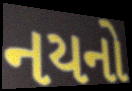
નયનો